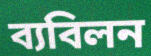
ব্যবিলন